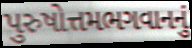
પુરુષોત્તમભગવાનનું